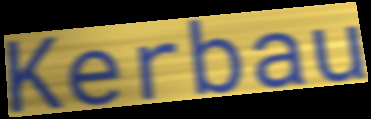
Kerbau